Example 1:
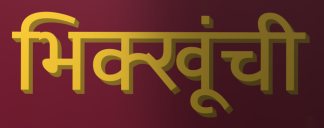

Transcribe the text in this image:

भिक्खूंची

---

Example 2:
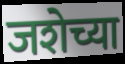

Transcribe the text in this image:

जशेच्या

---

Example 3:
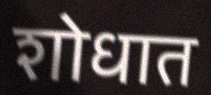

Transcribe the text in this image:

शोधात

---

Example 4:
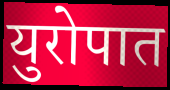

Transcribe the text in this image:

युरोपात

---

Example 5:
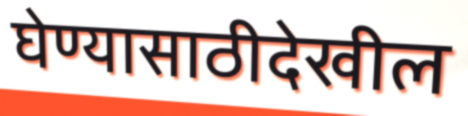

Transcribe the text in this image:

घेण्यासाठीदेखील